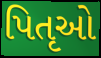
પિતૃઓ